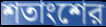
শতাংশের